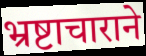
भ्रष्टाचाराने